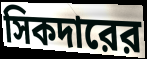
সিকদারের